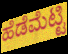
ಹೆಡೆಮೆಟ್ಟಿ